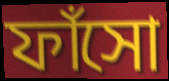
ফাঁসো